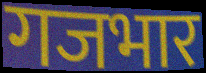
गजभार